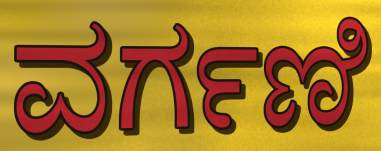
ವರ್ಗಣಿ